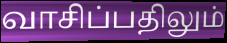
வாசிப்பதிலும்